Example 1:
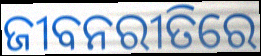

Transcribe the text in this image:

ଜୀବନରୀତିରେ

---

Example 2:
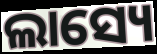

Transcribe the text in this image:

ଲାସ୍ୟେ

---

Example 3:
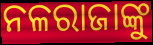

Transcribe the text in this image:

ନଳରାଜାଙ୍କୁ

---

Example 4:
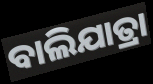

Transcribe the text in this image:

ବାଲିଯାତ୍ରା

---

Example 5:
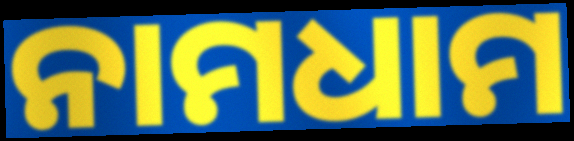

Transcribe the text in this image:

ନାମଧାମ